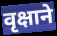
वृक्षाने